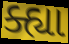
ક્હ્યા